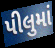
પીલુમાં